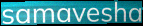
samavesha